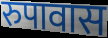
रुपावास